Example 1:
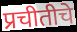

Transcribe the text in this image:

प्रचीतीचे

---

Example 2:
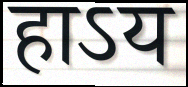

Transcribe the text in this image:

हाऽय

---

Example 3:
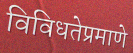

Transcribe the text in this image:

विविधतेप्रमाणे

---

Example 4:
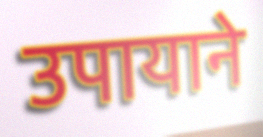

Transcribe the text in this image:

उपायाने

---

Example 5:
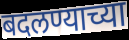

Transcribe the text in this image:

बदलण्याच्या